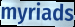
myriads